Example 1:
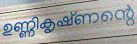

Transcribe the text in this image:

ഉണ്ണികൃഷ്‌ണന്റെ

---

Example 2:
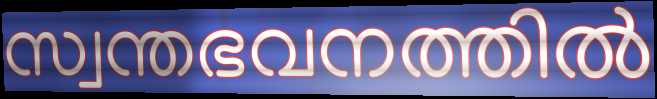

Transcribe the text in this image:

സ്വന്തഭവനത്തിൽ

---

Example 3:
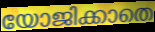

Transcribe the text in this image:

യോജിക്കാതെ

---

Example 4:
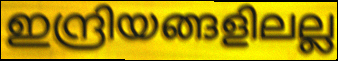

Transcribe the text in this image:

ഇന്ദ്രിയങ്ങളിലല്ല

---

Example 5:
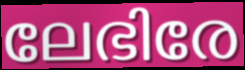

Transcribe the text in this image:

ലേഭിരേ